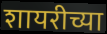
शायरीच्या